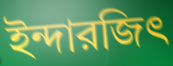
ইন্দারজিৎ